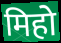
मिहो